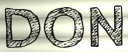
DON